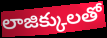
లాజిక్కులతో